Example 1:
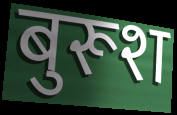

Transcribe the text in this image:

बुरूश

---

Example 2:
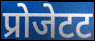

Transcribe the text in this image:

प्रोजेटट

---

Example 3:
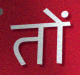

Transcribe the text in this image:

तों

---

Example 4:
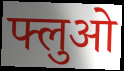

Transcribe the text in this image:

फ्लुओ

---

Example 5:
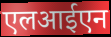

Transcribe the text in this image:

एलआईएन